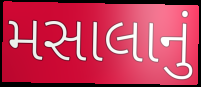
મસાલાનું